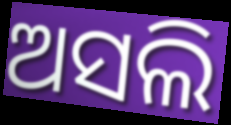
ଅସଲି